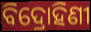
ବିଦ୍ରୋହିଣୀ